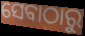
ସେବାଠାରୁ